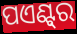
ପଏଣ୍ଟ୍‌ର